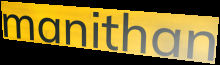
manithan